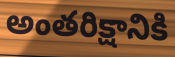
అంతరిక్షానికి